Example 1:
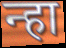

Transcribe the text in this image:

न्हा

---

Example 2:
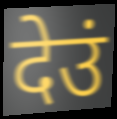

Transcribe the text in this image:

देउं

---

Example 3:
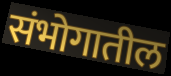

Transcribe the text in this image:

संभोगातील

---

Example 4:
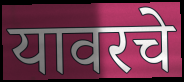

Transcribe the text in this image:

यावरचे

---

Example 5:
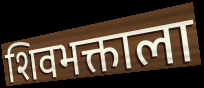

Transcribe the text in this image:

शिवभक्ताला